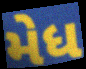
મેધ